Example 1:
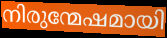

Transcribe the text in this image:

നിരുന്മേഷമായി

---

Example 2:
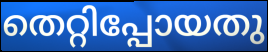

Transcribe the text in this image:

തെറ്റിപ്പോയതു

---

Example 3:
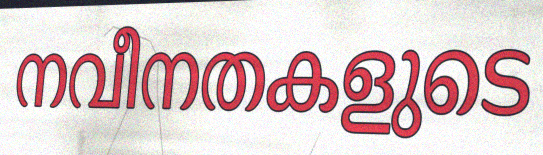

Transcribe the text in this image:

നവീനതകളുടെ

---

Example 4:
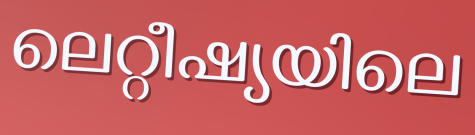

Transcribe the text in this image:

ലെറ്റീഷ്യയിലെ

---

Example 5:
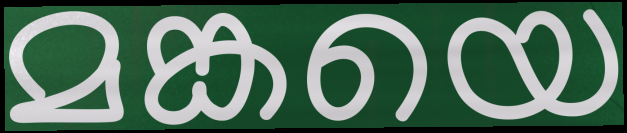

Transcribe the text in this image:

മങ്കയെ